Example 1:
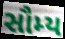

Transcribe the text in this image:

સૌમ્ય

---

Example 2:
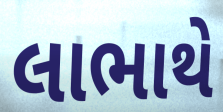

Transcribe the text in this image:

લાભાથે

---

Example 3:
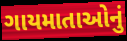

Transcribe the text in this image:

ગાયમાતાઓનું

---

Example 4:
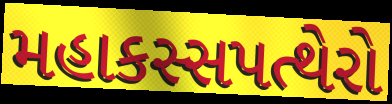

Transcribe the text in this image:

મહાકસ્સપત્થેરો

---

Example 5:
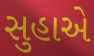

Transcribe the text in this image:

સુહાએ